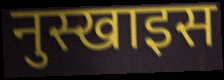
नुस्खाइस